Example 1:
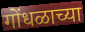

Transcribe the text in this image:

गोंधळाच्या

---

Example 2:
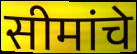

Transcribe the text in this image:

सीमांचे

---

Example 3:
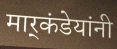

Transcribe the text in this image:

मार्कंडेयांनी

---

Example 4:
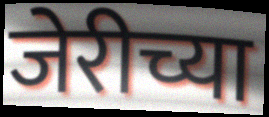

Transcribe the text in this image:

जेरीच्या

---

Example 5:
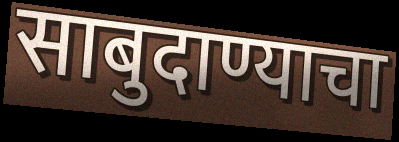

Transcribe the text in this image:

साबुदाण्याचा